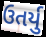
ઉતર્યુ